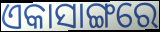
ଏକାସାଙ୍ଗରେ